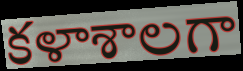
కళాశాలగా